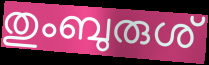
തുംബുരുശ്